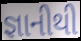
જ્ઞાનીથી